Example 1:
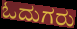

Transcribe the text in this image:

ಓದುಗರು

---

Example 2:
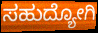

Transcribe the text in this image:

ಸಹುದ್ಯೋಗಿ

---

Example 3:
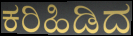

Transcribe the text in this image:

ಕರಿಹಿಡಿದ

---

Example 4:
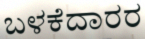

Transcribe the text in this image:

ಬಳಕೆದಾರರ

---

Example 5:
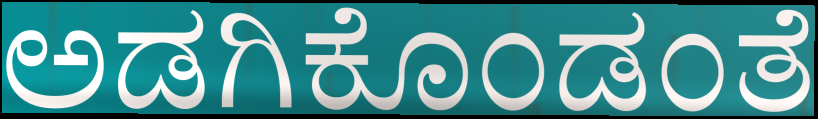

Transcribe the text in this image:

ಅಡಗಿಕೊಂಡಂತೆ